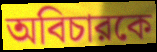
অবিচারকে